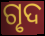
ଗୃଦ